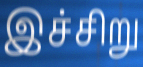
இச்சிறு